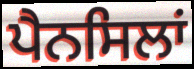
ਪੈਨਸਿਲਾਂ